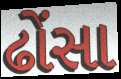
ઢોંસા